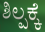
ಶಿಲ್ಪಕ್ಕೆ